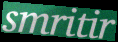
smritir